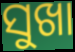
ସୁଖା